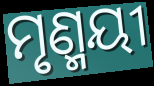
ମୃଣ୍ମୟୀ